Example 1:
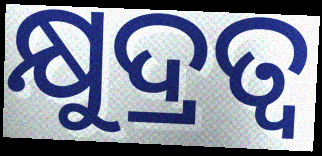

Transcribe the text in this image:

କ୍ଷୁଦ୍ରତ୍ୱ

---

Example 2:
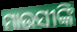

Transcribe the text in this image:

ମାଉସୀଙ୍କି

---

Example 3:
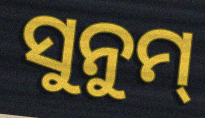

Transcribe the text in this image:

ସୁନୁମ୍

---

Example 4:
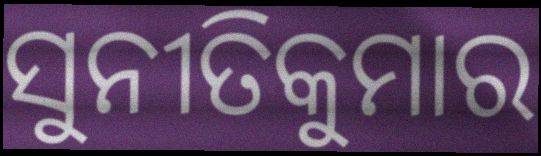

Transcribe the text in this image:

ସୁନୀତିକୁମାର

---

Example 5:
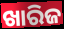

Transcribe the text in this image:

ଖାରିଜ